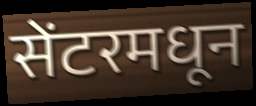
सेंटरमधून